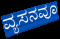
ವ್ಯಸನವೂ